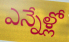
ఎన్నేళ్లో